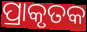
ପ୍ରାକୃତକ